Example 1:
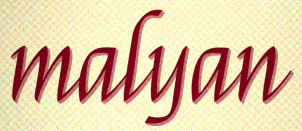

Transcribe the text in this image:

malyan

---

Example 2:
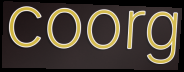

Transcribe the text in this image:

coorg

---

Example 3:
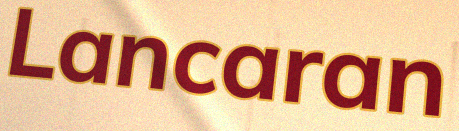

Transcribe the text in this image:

Lancaran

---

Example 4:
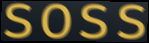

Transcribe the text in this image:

soss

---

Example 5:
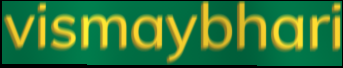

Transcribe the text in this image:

vismaybhari